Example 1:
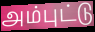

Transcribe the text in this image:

அம்புட்டு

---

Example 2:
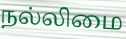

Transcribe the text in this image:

நல்லிமை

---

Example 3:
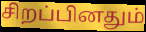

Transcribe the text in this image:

சிறப்பினதும்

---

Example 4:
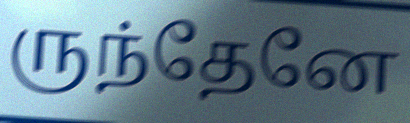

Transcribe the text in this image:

ருந்தேனே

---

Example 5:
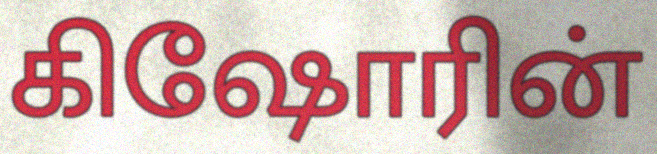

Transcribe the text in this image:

கிஷோரின்